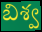
బిశ్వ